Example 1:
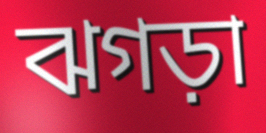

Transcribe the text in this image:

ঝগড়া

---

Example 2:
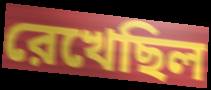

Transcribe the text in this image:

রেখেছিল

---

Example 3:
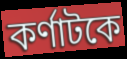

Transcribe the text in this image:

কর্ণাটকে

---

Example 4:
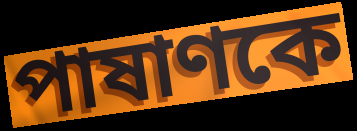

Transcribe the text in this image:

পাষাণকে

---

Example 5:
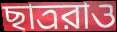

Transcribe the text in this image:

ছাত্ররাও